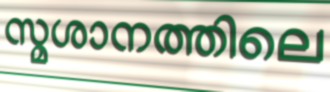
സ്മശാനത്തിലെ